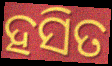
ହସିତ